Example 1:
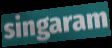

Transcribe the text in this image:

singaram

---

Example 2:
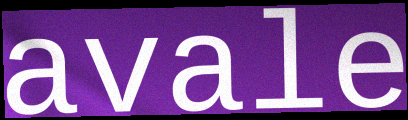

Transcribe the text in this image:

avale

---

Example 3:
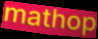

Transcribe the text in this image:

mathop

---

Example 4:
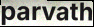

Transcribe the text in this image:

parvath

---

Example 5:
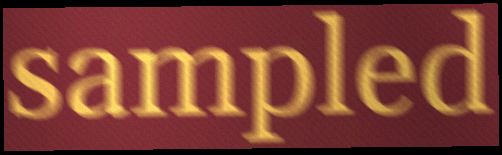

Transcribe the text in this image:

sampled